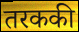
तरककी